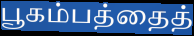
பூகம்பத்தைத்